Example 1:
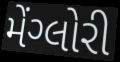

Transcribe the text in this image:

મેંગ્લોરી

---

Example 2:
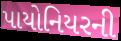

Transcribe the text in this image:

પાયોનિયરની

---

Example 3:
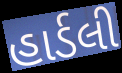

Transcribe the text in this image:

હાર્ડલી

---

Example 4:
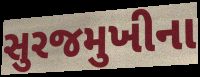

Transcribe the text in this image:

સુરજમુખીના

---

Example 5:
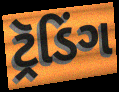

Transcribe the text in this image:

ટ્રૅડિંગ